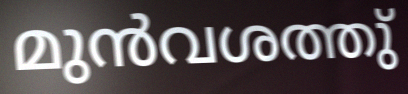
മുൻവശത്തു്